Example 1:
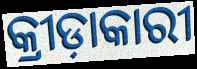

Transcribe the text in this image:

କ୍ରୀଡ଼ାକାରୀ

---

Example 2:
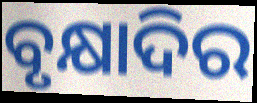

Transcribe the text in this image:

ବୃକ୍ଷାଦିର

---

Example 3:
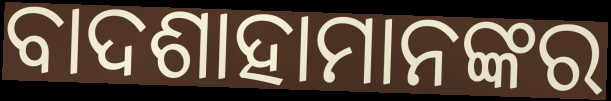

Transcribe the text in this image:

ବାଦଶାହାମାନଙ୍କର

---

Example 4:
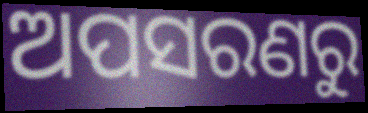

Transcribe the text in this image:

ଅପସରଣରୁ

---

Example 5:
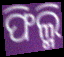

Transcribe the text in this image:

ଫିଲ୍ମି